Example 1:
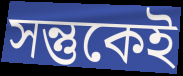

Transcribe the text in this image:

সন্তুকেই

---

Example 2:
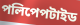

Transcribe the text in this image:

পলিপেপটাইড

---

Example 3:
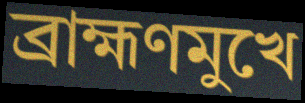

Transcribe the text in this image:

ব্রাহ্মণমুখে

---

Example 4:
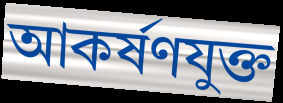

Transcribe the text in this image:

আকর্ষণযুক্ত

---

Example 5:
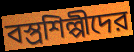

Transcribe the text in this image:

বস্ত্রশিল্পীদের